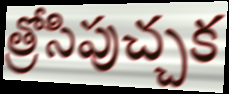
త్రోసిపుచ్చక